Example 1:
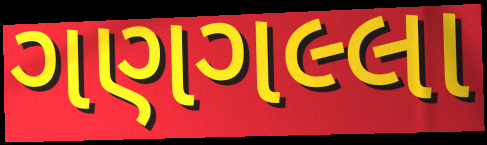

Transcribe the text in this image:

ગણગલ્લા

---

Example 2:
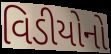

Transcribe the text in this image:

વિડીયોનો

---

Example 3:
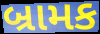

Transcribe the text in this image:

બ્રામક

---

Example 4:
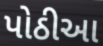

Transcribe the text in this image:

પોઠીઆ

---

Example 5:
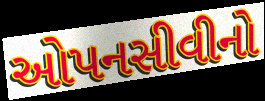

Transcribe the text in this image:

ઓપનસીવીનો